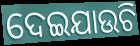
ଦେଇଯାଉଚି